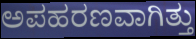
ಅಪಹರಣವಾಗಿತ್ತು